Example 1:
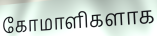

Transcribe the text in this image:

கோமாளிகளாக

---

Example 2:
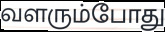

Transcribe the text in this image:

வளரும்போது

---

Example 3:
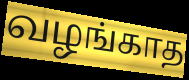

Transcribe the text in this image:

வழங்காத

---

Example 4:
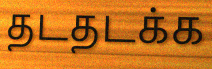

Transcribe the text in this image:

தடதடக்க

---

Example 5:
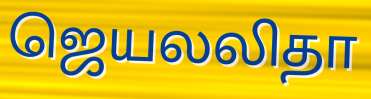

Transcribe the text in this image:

ஜெயலலிதா